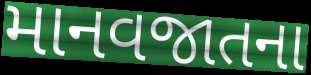
માનવજાતના